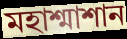
মহাশ্মাশান